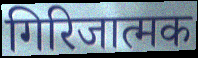
गिरिजात्मक